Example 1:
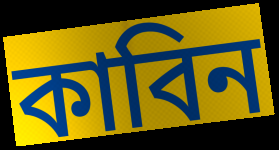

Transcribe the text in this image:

কাবিন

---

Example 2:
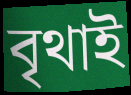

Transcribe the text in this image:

বৃথাই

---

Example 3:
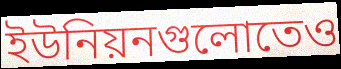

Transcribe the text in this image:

ইউনিয়নগুলোতেও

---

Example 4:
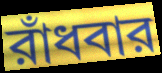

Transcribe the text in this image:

রাঁধবার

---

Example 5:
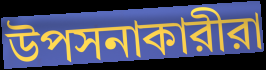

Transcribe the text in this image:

উপসনাকারীরা